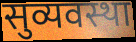
सुव्यवस्था